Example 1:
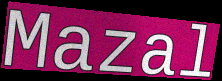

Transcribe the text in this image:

Mazal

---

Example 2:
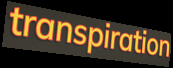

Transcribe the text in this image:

transpiration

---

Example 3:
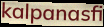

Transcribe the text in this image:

kalpanasfi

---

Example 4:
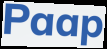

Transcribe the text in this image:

Paap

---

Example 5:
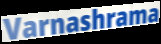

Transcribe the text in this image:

Varnashrama